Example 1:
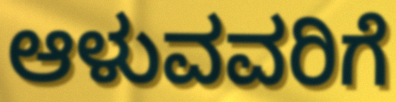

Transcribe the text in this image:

ಆಳುವವರಿಗೆ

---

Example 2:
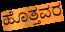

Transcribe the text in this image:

ಹೊತ್ತವರ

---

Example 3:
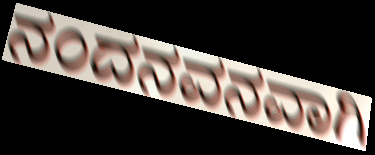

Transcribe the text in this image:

ನಂದನವನವಾಗಿ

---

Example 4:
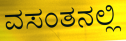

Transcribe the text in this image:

ವಸಂತನಲ್ಲಿ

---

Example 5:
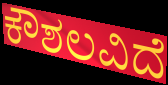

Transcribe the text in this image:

ಕೌಶಲವಿದೆ